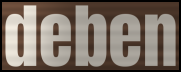
deben